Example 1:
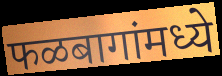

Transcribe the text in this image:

फळबागांमध्ये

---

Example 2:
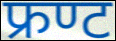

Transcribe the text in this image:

फ्रण्ट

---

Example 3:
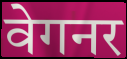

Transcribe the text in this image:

वेगनर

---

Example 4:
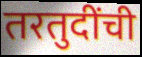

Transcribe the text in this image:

तरतुदींची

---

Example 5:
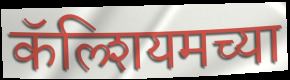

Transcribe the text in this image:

कॅल्शियमच्या